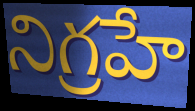
నిగ్రహే